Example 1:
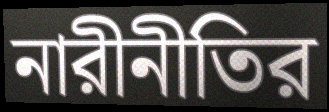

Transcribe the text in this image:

নারীনীতির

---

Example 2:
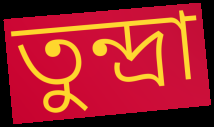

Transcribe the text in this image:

তুন্দ্রা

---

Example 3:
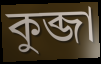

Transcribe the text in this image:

কুব্জা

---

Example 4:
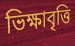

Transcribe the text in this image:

ভিক্ষাবৃত্তি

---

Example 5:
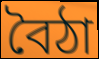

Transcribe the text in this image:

বৈঠা